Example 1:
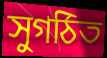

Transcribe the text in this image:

সুগঠিত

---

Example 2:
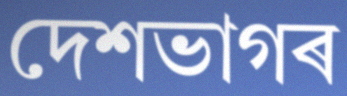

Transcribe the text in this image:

দেশভাগৰ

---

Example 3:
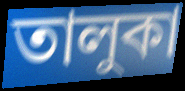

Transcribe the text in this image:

তালুকা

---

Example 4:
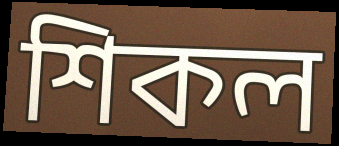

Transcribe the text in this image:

শিকল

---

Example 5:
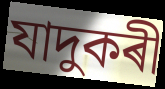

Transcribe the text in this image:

যাদুকৰী